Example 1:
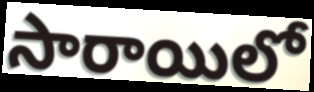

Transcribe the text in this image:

సారాయిలో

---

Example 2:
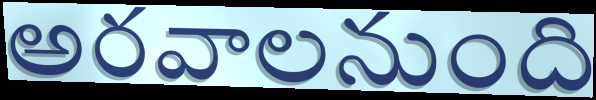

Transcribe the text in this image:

అరవాలనుంది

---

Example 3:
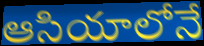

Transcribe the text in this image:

ఆసియాలోనే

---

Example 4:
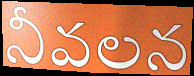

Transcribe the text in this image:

నీవలన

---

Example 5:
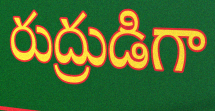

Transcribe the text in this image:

రుద్రుడిగా